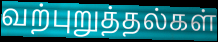
வற்புறுத்தல்கள்